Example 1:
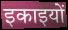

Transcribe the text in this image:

इकाइयों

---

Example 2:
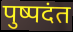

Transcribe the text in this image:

पुष्पदंत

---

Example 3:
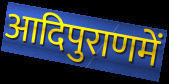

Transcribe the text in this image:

आदिपुराणमें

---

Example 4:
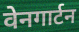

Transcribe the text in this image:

वेनगार्टन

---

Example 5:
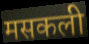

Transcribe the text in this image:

मसकली